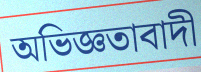
অভিজ্ঞতাবাদী